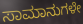
ಸಾಮಾನುಗಳೇ